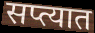
सप्त्यात